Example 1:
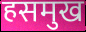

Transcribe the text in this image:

हसमुख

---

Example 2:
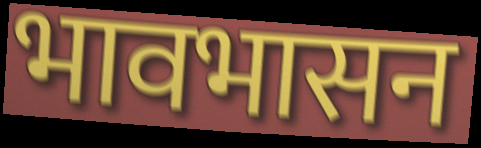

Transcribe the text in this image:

भावभासन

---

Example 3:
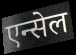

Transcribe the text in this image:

एन्सेल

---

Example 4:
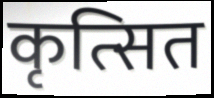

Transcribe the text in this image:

कृत्सित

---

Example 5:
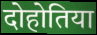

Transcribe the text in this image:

दोहोतिया